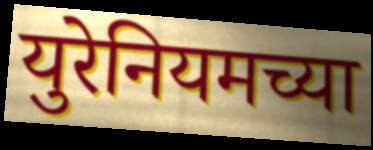
युरेनियमच्या